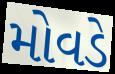
મોવડે